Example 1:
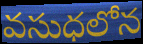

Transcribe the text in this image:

వసుధలోన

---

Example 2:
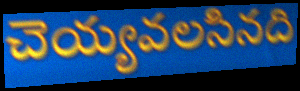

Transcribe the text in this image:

చెయ్యవలసినది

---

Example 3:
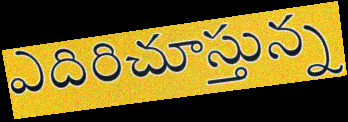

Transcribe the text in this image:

ఎదిరిచూస్తున్న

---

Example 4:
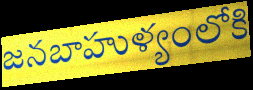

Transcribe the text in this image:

జనబాహుళ్యంలోకి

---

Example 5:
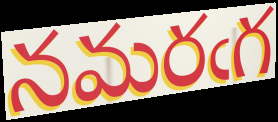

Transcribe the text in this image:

నమరఁగ